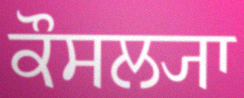
ਕੌਸਲ੍ਯਾ